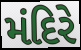
મંદિરે